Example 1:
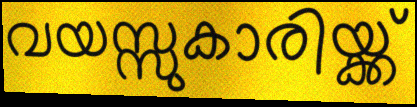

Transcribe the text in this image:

വയസ്സുകാരിയ്ക്ക്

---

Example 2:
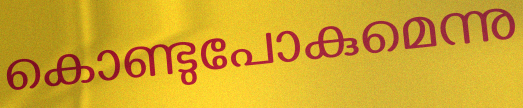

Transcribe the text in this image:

കൊണ്ടുപോകുമെന്നു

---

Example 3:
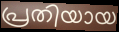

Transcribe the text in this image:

പ്രതിയായ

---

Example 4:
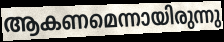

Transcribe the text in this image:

ആകണമെന്നായിരുന്നു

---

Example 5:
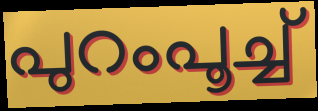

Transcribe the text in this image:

പുറംപൂച്ച്